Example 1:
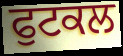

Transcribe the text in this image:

ਫੁਟਕਲ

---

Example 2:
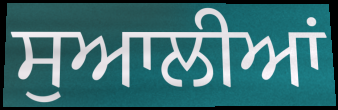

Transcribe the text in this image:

ਸੁਆਲੀਆਂ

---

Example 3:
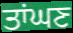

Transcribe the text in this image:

ਤਾਂਘਣ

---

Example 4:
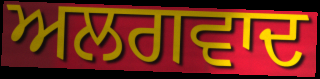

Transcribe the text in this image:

ਅਲਗਵਾਦ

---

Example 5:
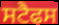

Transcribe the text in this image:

ਸਟੈਫਸ